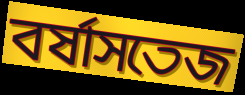
বর্ষাসতেজ